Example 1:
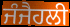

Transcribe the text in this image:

ਜੰਜੈਹਲੀ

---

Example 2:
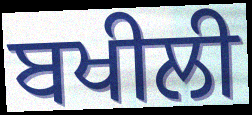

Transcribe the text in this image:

ਬਖੀਲੀ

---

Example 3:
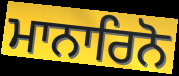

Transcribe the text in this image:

ਮਾਨਾਰਿਨੋ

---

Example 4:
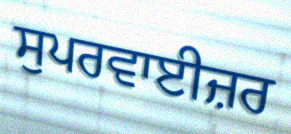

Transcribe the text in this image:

ਸੁਪਰਵਾਈਜ਼ਰ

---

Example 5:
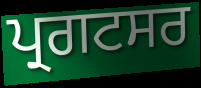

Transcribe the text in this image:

ਪ੍ਰਗਟਸਰ